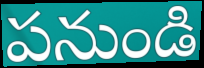
పనుండి